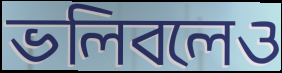
ভলিবলেও